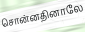
சொன்னதினாலே